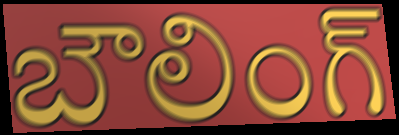
బౌలింగ్